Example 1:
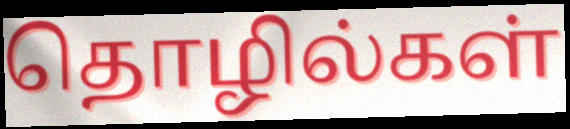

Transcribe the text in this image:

தொழில்கள்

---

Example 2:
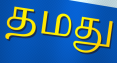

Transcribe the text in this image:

தமது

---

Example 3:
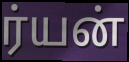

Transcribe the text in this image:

ர்யன்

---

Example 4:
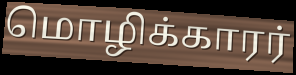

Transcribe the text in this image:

மொழிக்காரர்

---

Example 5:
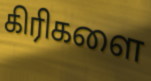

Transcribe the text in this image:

கிரிகளை